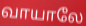
வாயாலே